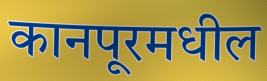
कानपूरमधील